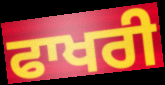
ਫਾਖਰੀ